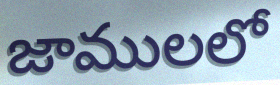
జాములలో